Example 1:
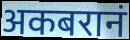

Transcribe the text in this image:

अकबरानं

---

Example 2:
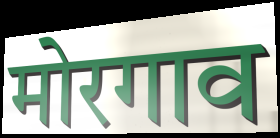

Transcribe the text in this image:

मोरगाव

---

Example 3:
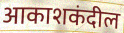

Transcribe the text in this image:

आकाशकंदील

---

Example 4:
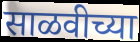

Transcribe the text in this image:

साळवीच्या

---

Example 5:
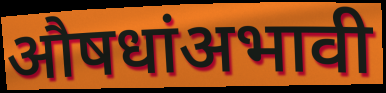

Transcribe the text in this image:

औषधांअभावी